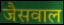
जैसवाल